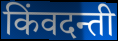
किंवदन्ती